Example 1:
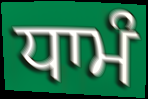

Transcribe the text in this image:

ਧਾਮੰ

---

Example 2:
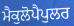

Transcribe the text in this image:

ਮੈਕੁਲੋਪੈਪੁਲਰ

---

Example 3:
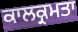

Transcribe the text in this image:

ਕਾਲਕ੍ਰਮਤਾ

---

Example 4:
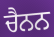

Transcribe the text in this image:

ਚੈਨਨ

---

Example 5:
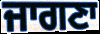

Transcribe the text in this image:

ਜਾਗਣਾ